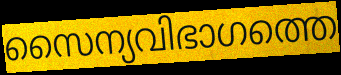
സൈന്യവിഭാഗത്തെ